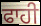
ਫਾਹੀ